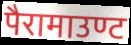
पैरामाउण्ट